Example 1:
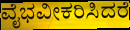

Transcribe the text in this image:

ವೈಭವೀಕರಿಸಿದರೆ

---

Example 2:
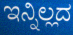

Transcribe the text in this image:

ಇನ್ನಿಲ್ಲದ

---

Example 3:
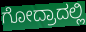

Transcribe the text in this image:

ಗೋದ್ರಾದಲ್ಲಿ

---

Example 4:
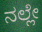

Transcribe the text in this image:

ನಲ್ಲೇ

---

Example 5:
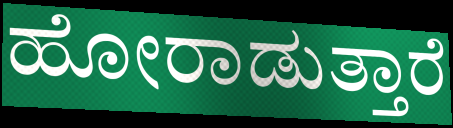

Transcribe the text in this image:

ಹೋರಾಡುತ್ತಾರೆ